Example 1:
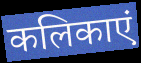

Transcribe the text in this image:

कलिकाएं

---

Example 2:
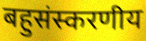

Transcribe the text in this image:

बहुसंस्करणीय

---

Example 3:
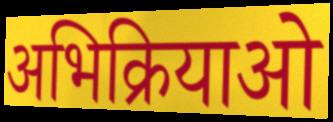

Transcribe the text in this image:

अभिक्रियाओ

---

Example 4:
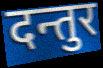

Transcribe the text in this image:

दन्तुर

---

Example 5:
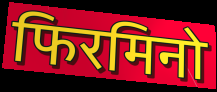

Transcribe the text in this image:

फिरमिनो